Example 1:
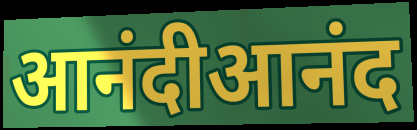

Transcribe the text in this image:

आनंदीआनंद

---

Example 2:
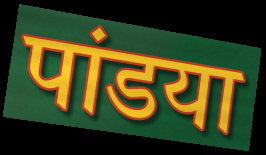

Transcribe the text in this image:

पांडया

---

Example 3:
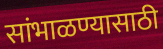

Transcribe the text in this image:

सांभाळण्यासाठी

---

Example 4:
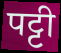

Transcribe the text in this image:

पट्टी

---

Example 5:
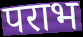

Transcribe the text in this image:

पराभ